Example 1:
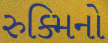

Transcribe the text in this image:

રુક્મિનો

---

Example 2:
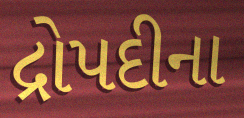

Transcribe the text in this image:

દ્રોપદીના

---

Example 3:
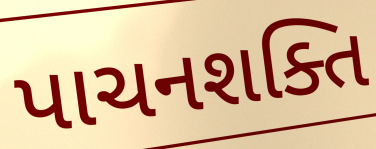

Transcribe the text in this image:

પાચનશક્તિ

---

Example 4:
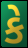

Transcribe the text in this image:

કે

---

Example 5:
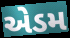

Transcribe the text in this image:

એડમ